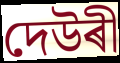
দেউৰী